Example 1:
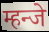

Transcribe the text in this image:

म्हन्जे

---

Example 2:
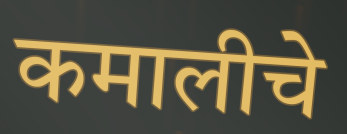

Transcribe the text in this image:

कमालीचे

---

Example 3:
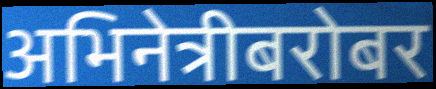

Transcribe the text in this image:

अभिनेत्रीबरोबर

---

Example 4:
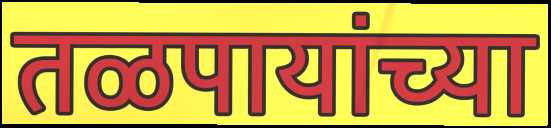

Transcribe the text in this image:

तळपायांच्या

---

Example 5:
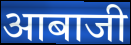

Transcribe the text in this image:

आबाजी